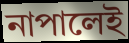
নাপালেই